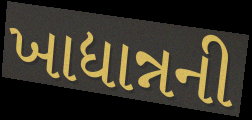
ખાદ્યાન્નની